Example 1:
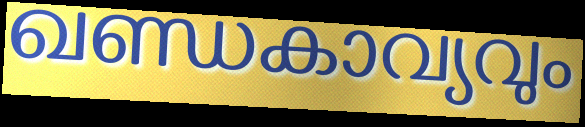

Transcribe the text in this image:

ഖണ്ഡകാവ്യവും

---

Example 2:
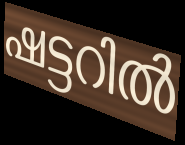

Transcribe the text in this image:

ഷട്ടറിൽ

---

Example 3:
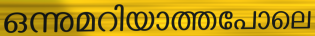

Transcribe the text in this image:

ഒന്നുമറിയാത്തപോലെ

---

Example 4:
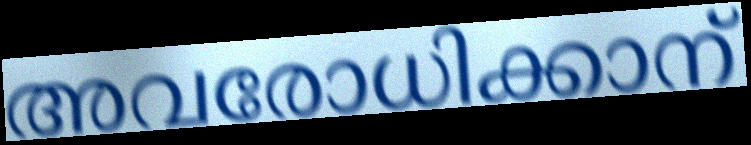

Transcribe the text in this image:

അവരോധിക്കാന്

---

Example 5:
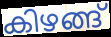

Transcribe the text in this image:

കിഴങ്ങ്